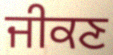
ਜੀਕਣ